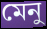
মেনু